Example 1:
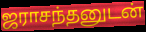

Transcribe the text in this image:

ஜராசந்தனுடன்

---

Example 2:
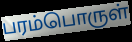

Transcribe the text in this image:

பரம்பொருள்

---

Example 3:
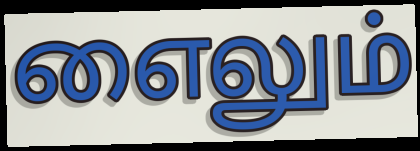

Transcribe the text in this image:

எைலும்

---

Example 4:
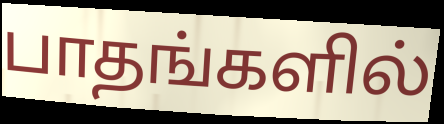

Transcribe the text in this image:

பாதங்களில்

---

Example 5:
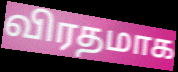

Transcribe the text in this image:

விரதமாக